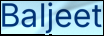
Baljeet